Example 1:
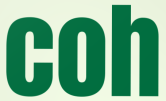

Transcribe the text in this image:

coh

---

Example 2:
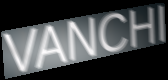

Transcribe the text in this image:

VANCHI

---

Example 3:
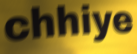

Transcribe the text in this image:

chhiye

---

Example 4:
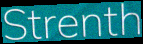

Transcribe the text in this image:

Strenth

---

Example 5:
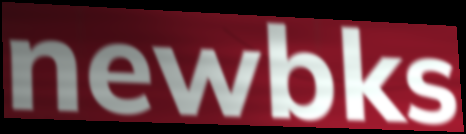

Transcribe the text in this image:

newbks